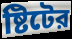
ষ্টিটের